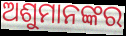
ଅଶୁମାନଙ୍କର